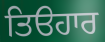
ਤਿੳਹਾਰ